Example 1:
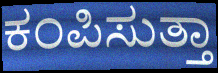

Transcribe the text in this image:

ಕಂಪಿಸುತ್ತಾ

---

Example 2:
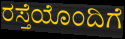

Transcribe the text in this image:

ರಸ್ತೆಯೊಂದಿಗೆ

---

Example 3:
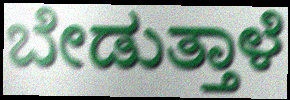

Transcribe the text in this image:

ಬೇಡುತ್ತಾಳೆ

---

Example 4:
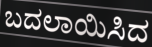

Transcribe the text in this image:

ಬದಲಾಯಿಸಿದ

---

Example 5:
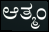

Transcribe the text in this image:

ಆತ್ಮಂ